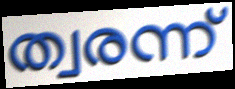
ത്വരന്ന്